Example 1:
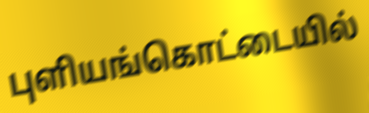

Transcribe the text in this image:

புளியங்கொட்டையில்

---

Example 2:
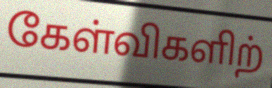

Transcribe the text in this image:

கேள்விகளிற்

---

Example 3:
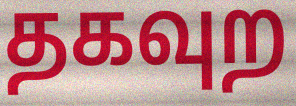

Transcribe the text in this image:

தகவுற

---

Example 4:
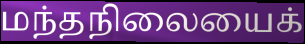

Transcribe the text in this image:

மந்தநிலையைக்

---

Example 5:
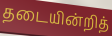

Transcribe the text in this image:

தடையின்றித்